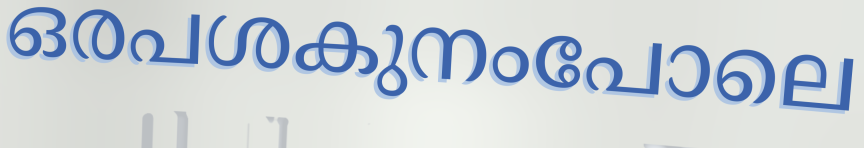
ഒരപശകുനംപോലെ